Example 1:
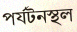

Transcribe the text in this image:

পর্যটনস্থল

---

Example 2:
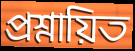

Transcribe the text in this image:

প্রশ্নায়িত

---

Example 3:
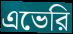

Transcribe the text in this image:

এভেরি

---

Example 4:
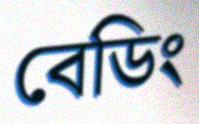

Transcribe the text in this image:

বেডিং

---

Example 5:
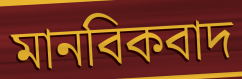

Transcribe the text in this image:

মানবিকবাদ